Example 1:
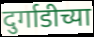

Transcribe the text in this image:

दुर्गाडीच्या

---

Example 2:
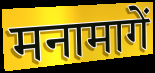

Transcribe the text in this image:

मनामागें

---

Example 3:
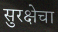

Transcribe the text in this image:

सुरक्षेचा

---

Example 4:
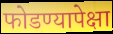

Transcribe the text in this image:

फोडण्यापेक्षा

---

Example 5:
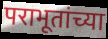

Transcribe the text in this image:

पराभूतांच्या